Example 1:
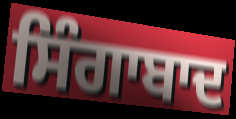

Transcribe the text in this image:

ਸਿੰਗਾਬਾਦ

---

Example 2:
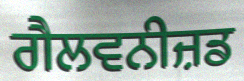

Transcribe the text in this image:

ਗੈਲਵਨੀਜ਼ਡ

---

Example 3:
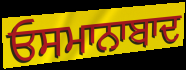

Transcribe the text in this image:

ਓਸਮਾਨਾਬਾਦ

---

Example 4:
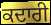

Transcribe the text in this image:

ਕਦਾਰੀ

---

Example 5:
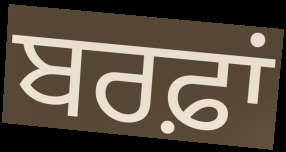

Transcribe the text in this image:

ਬਰਫ਼ਾਂ